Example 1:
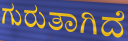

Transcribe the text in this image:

ಗುರುತಾಗಿದೆ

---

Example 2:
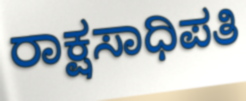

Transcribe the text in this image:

ರಾಕ್ಷಸಾಧಿಪತಿ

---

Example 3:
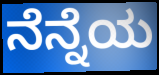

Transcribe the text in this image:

ನೆನ್ನೆಯ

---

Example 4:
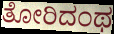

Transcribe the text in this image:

ತೋರಿದಂಥ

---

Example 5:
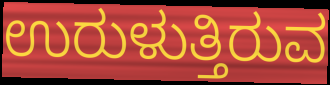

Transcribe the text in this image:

ಉರುಳುತ್ತಿರುವ